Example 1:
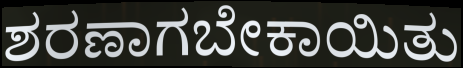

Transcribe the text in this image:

ಶರಣಾಗಬೇಕಾಯಿತು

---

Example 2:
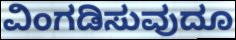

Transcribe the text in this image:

ವಿಂಗಡಿಸುವುದೂ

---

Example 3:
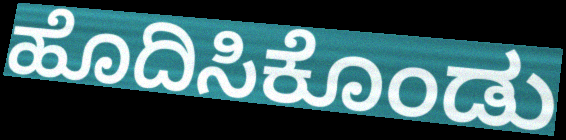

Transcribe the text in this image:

ಹೊದಿಸಿಕೊಂಡು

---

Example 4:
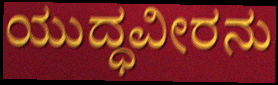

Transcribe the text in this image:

ಯುದ್ಧವೀರನು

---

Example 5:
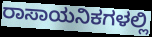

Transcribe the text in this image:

ರಾಸಾಯನಿಕಗಳಲ್ಲಿ